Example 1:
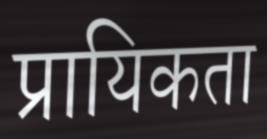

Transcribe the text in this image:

प्रायिकता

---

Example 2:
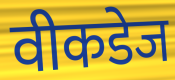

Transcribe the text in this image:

वीकडेज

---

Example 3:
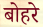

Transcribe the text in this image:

बोहरे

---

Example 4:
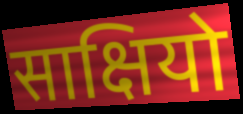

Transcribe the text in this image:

साक्षियो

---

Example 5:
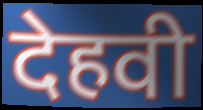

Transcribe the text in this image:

देहवी